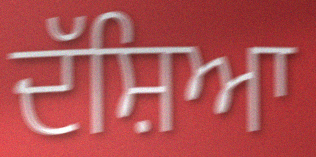
ਦੱਸ਼ਿਆ